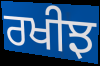
ਰਖੀਝ